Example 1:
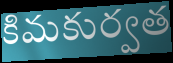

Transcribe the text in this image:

కిమకుర్వత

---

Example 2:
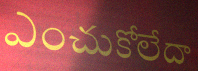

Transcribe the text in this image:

ఎంచుకోలేదా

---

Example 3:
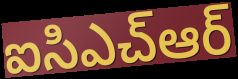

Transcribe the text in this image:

ఐసిఎచ్ఆర్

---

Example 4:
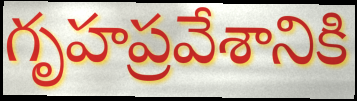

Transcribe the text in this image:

గృహప్రవేశానికి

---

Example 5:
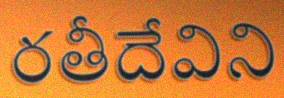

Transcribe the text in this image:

రతీదేవిని